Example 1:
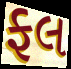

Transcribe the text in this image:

ફલ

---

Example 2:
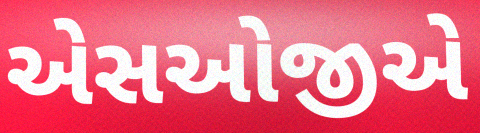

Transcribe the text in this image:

એસઓજીએ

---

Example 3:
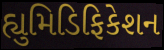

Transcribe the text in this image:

હ્યુમિડિફિકેશન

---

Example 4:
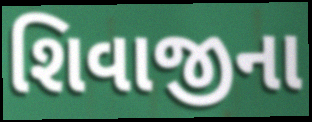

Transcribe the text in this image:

શિવાજીના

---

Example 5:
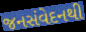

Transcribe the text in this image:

જનસંવેદનથી